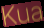
Kua